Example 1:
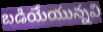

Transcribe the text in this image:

బడియేయున్నవి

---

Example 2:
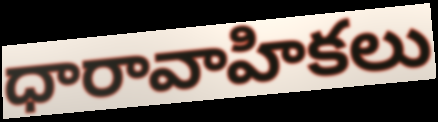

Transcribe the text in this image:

ధారావాహికలు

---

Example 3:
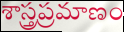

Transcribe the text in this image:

శాస్త్రప్రమాణం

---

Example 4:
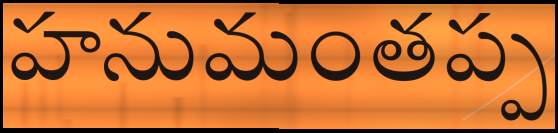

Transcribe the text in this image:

హనుమంతప్ప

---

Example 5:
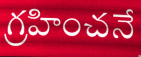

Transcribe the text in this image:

గ్రహించనే